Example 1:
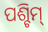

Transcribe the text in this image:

ପଶ୍ଚିମ୍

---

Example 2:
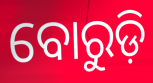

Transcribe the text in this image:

ବୋରୁଡ଼ି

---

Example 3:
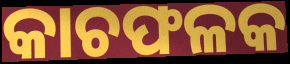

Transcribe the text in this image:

କାଚଫଳକ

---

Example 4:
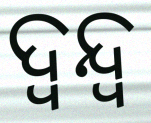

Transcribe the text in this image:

ଦ୍ବନ୍ଦ୍ବ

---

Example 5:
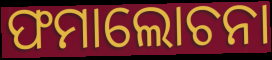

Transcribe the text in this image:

ଫମାଲୋଚନା